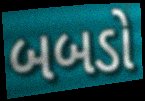
બબડો